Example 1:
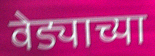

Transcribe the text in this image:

वेड्याच्या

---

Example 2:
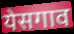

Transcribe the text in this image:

येसगाव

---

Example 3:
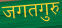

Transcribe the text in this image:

जगतगुरु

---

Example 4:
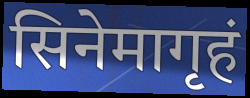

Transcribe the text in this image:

सिनेमागृहं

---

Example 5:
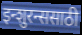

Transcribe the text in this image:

इन्शुरन्ससाठी